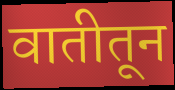
वातीतून